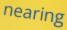
nearing